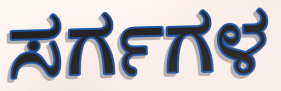
ಸರ್ಗಗಳ